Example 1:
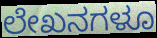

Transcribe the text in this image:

ಲೇಖನಗಳೂ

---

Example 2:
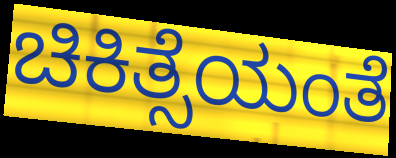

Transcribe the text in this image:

ಚಿಕಿತ್ಸೆಯಂತೆ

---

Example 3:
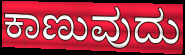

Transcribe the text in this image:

ಕಾಣುವುದು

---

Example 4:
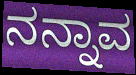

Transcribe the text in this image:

ನನ್ನಾವ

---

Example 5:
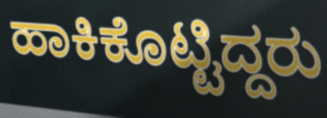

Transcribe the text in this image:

ಹಾಕಿಕೊಟ್ಟಿದ್ದರು